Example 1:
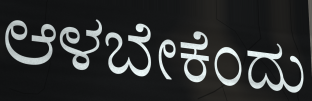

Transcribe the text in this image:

ಆಳಬೇಕೆಂದು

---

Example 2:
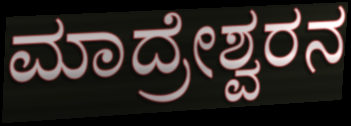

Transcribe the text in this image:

ಮಾದ್ರೇಶ್ವರನ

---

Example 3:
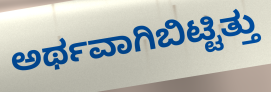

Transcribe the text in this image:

ಅರ್ಥವಾಗಿಬಿಟ್ಟಿತ್ತು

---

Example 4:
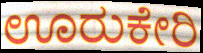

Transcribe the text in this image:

ಊರುಕೇರಿ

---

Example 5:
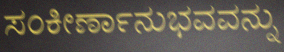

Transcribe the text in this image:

ಸಂಕೀರ್ಣಾನುಭವವನ್ನು